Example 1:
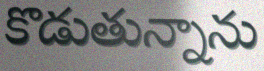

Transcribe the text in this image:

కొడుతున్నాను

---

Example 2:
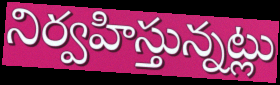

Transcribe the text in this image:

నిర్వహిస్తున్నట్లు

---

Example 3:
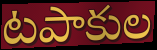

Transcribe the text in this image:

టపాకుల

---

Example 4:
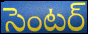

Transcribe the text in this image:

సెంటర్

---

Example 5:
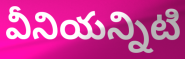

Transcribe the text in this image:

వీనియన్నిటి